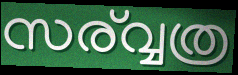
സര്വ്വത്ര